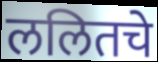
ललितचे